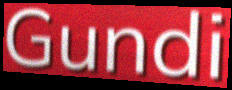
Gundi